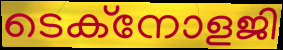
ടെക്നോളജി